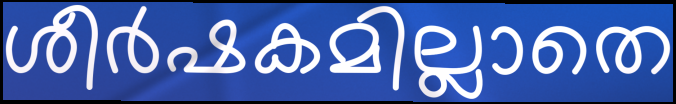
ശീർഷകമില്ലാതെ